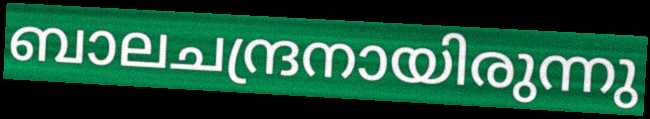
ബാലചന്ദ്രനായിരുന്നു